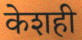
केशही